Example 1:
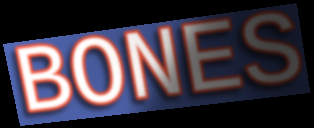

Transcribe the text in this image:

BONES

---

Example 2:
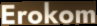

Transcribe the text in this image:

Erokom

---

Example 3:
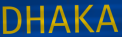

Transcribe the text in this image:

DHAKA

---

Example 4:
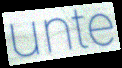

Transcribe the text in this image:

unte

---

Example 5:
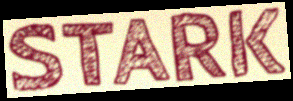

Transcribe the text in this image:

STARK